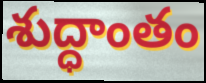
శుద్ధాంతం